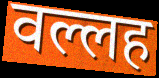
वल्लह